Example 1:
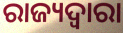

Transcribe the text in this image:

ରାଜ୍ୟଦ୍ୱାରା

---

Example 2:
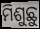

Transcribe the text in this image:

ମିଶୁଛୁ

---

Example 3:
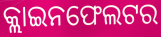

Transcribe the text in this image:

କ୍ଲାଇନଫେଲଟର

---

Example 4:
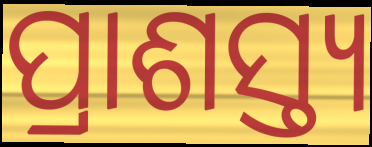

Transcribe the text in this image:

ପ୍ରାଶସ୍ତ୍ୟ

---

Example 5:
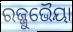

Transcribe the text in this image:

ରଜ୍ଜୁଭୈୟା